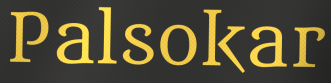
Palsokar